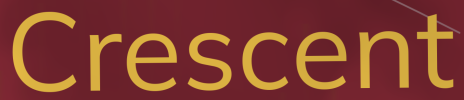
Crescent